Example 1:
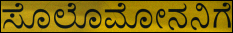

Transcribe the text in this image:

ಸೊಲೊಮೋನನಿಗೆ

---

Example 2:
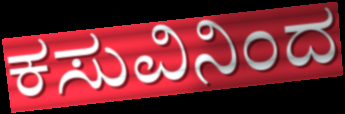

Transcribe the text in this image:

ಕಸುವಿನಿಂದ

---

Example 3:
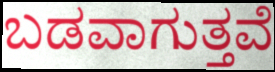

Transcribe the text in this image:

ಬಡವಾಗುತ್ತವೆ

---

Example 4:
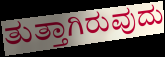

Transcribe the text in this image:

ತುತ್ತಾಗಿರುವುದು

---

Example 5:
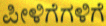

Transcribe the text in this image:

ಪೀಳಿಗೆಗಳಿಗೆ